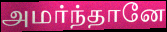
அமர்ந்தானே